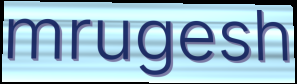
mrugesh